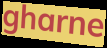
gharne